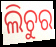
ଲିଚୁର